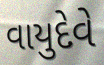
વાયુદેવે